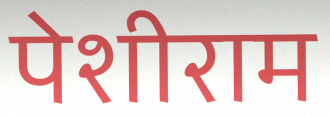
पेशीराम